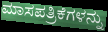
ಮಾಸಪತ್ರಿಕೆಗಳನ್ನು